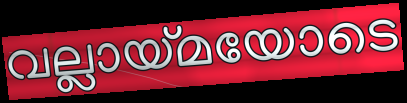
വല്ലായ്മയോടെ